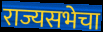
राज्यसभेचा